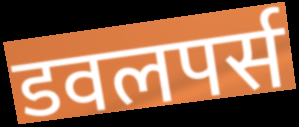
डवलपर्स